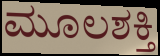
ಮೂಲಶಕ್ತಿ